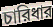
চারিধার